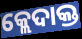
କ୍ଲେଦାକ୍ତ